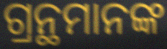
ଗ୍ରନ୍ଥମାନଙ୍କ